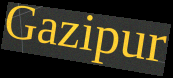
Gazipur